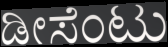
ಡೀಸೆಂಟು